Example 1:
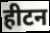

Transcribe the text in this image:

हीटन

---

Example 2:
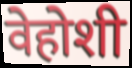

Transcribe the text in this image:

वेहोशी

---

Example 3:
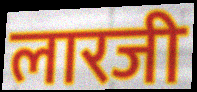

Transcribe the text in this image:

लारजी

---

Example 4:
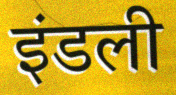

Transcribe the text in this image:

इंडली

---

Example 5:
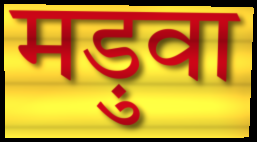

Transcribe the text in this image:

मड़ुवा